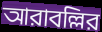
আরাবল্লির